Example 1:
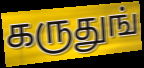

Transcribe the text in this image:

கருதுங்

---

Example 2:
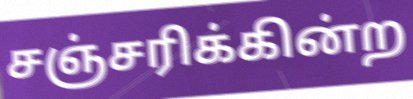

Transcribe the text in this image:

சஞ்சரிக்கின்ற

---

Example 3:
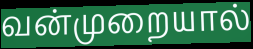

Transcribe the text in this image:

வன்முறையால்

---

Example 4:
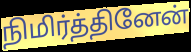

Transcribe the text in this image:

நிமிர்த்தினேன்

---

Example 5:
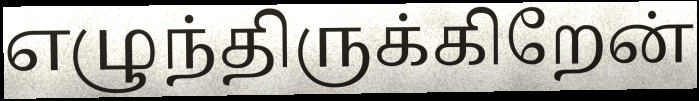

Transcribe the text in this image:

எழுந்திருக்கிறேன்